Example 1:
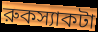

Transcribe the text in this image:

রুকস্যাকটা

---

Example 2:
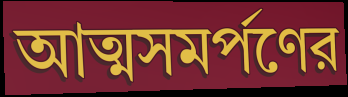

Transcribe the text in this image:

আত্মসমর্পণের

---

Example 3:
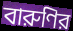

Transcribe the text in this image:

বারুণির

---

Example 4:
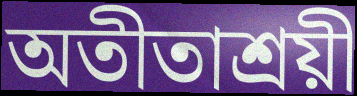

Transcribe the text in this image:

অতীতাশ্রয়ী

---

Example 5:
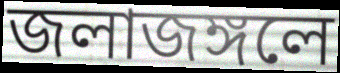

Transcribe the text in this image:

জলাজঙ্গলে